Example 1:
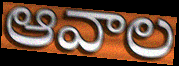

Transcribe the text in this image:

ఆవాల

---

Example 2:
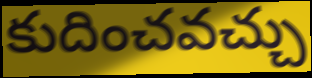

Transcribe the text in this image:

కుదించవచ్చు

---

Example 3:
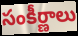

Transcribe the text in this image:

సంకీర్ణాలు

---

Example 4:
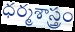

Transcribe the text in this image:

ధర్మశాస్త్రం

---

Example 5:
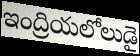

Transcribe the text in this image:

ఇంద్రియలోలుడై